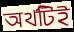
অর্থটিই